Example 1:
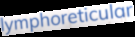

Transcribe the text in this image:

lymphoreticular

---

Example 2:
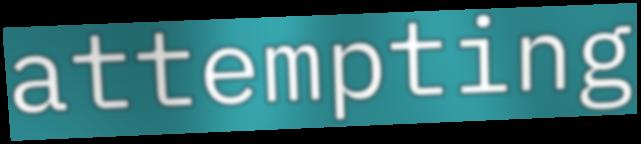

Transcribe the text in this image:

attempting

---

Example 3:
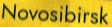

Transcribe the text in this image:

Novosibirsk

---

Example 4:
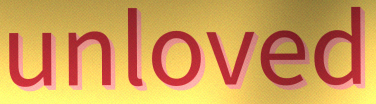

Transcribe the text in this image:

unloved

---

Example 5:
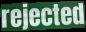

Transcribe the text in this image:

rejected